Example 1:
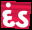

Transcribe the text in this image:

દંડ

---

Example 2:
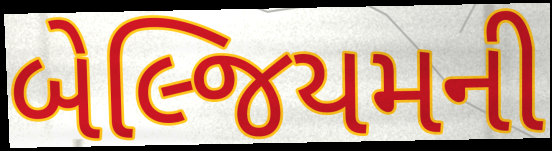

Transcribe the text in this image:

બેલ્જિયમની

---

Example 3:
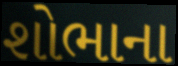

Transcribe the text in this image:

શોભાના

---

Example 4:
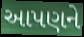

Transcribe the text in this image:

આપણને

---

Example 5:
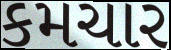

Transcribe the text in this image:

કમચાર